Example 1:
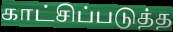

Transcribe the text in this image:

காட்சிப்படுத்த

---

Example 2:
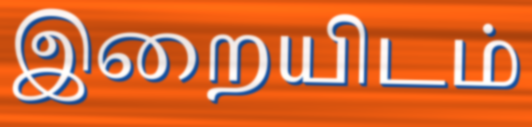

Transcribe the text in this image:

இறையிடம்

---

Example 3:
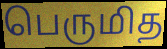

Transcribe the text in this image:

பெருமித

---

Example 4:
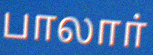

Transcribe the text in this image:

பாலார்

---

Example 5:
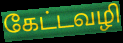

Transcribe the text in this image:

கேட்டவழி